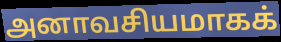
அனாவசியமாகக்